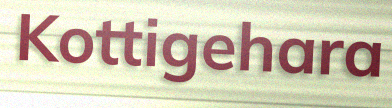
Kottigehara